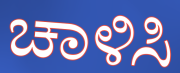
ಚಾಳಿಸಿ